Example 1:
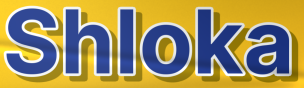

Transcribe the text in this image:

Shloka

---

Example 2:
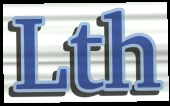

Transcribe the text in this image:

Lth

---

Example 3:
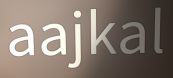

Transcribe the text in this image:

aajkal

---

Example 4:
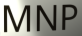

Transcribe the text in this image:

MNP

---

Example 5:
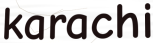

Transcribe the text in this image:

karachi